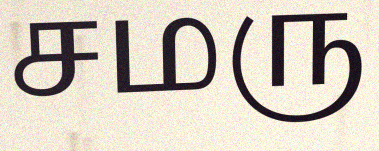
சமரு